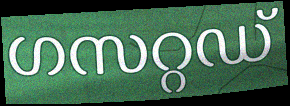
ഗസറ്റഡ്